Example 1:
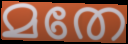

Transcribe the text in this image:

മതേ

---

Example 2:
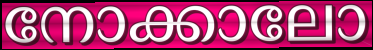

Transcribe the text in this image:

നോക്കാലോ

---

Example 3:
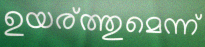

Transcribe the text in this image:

ഉയര്ത്തുമെന്ന്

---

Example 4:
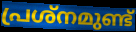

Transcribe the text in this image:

പ്രശ്നമുണ്ട്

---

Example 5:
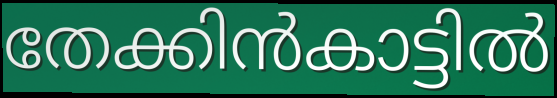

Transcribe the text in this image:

തേക്കിൻകാട്ടിൽ